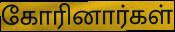
கோரினார்கள்